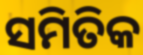
ସମିତିକ